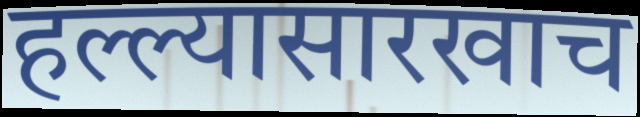
हल्ल्यासारखाच